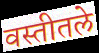
वस्तीतले